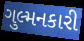
ગુલ્મનકારી